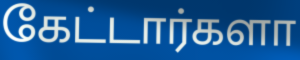
கேட்டார்களா